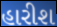
હારીશ